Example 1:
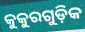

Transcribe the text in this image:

କୁକୁରଗୁଡ଼ିକ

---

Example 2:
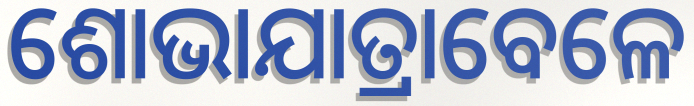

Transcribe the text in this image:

ଶୋଭାଯାତ୍ରାବେଳେ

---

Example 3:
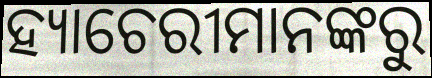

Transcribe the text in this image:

ହ୍ୟାଚେରୀମାନଙ୍କରୁ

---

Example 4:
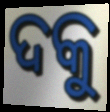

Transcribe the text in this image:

ଦକୁ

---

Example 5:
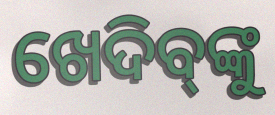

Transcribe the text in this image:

ଖେଦିବ୍‌ଙ୍କୁ